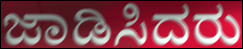
ಜಾಡಿಸಿದರು